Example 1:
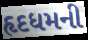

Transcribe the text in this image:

હૃદધમની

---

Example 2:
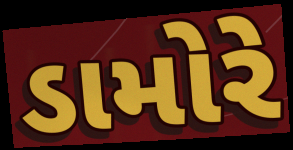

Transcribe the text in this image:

ડામોરે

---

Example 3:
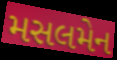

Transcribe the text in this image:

મસલમેન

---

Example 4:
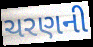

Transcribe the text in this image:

ચરણની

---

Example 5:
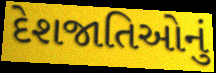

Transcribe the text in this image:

દેશજાતિઓનું